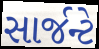
સાર્જન્ટે